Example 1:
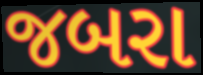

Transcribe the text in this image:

જબરા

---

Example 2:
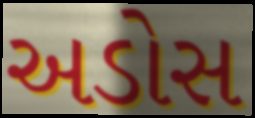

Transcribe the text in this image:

અડોસ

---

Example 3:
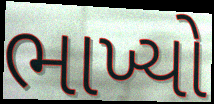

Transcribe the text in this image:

ભાખ્યો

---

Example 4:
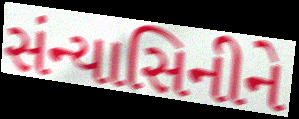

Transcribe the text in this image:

સંન્યાસિનીને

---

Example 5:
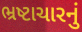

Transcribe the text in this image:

ભ્રષ્ટાચારનું